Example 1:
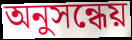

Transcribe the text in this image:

অনুসন্ধেয়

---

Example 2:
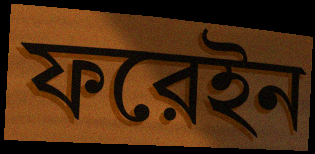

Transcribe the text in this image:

ফরেইন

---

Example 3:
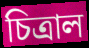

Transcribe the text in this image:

চিত্রাল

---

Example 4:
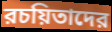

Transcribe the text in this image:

রচয়িতাদের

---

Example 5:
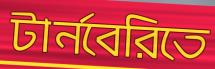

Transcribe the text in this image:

টার্নবেরিতে